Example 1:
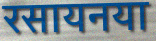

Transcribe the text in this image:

रसायनया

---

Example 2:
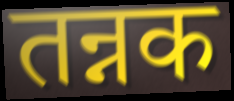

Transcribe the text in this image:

तन्नक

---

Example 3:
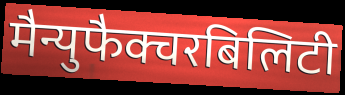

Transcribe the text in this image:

मैन्युफैक्चरबिलिटी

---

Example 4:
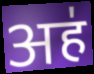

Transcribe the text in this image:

अह॑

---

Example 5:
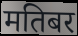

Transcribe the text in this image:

मतिबर